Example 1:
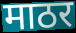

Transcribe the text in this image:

माठर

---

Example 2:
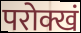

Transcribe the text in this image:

परोक्खं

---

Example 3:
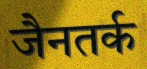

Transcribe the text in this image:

जैनतर्क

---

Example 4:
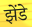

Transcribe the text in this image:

झेंडे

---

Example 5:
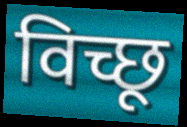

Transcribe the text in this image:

विच्छू